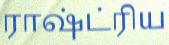
ராஷ்ட்ரிய